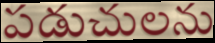
పడుచులను